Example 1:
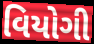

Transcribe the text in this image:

વિયોગી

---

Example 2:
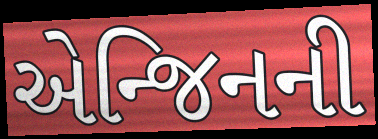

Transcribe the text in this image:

એન્જિનની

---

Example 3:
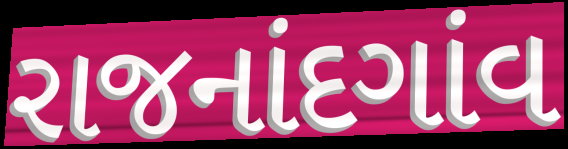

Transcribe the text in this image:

રાજનાંદગાંવ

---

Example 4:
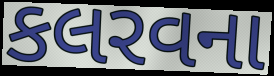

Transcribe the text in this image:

કલરવના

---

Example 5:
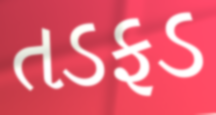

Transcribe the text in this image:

તડફડ